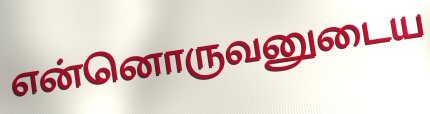
என்னொருவனுடைய